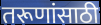
तरूणांसाठी